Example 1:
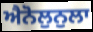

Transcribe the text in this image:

ਐਨੋਲੁਨੁਲਾ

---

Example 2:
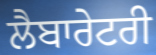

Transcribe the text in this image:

ਲੈਬਾਰੇਟਰੀ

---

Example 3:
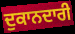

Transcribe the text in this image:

ਦੁਕਾਨਦਾਰੀ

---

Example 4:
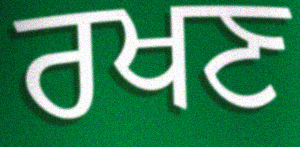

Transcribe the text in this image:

ਰਖਣ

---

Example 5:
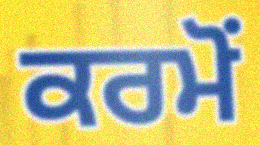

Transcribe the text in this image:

ਕਰਮੋਂ